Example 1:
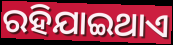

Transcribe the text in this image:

ରହିଯାଇଥାଏ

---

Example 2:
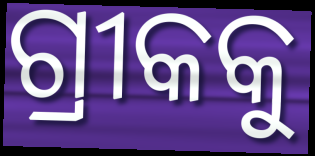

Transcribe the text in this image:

ଗ୍ରୀକକୁ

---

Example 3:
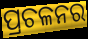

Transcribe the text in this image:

ପ୍ରଚଳନର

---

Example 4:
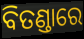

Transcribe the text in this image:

ବିତଣ୍ଡାରେ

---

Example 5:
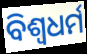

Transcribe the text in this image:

ବିଶ୍ବଧର୍ମ